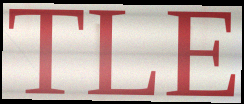
TLE